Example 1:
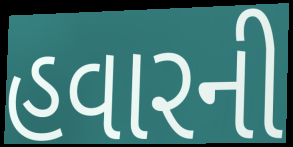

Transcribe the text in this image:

હવારની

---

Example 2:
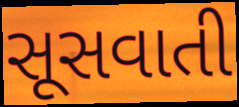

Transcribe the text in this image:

સૂસવાતી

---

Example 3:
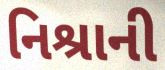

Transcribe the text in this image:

નિશ્રાની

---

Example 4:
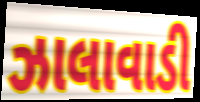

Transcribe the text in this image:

ઝાલાવાડી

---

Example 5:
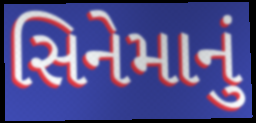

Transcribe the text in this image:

સિનેમાનું